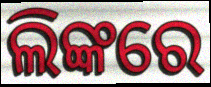
ଲିଙ୍କରେ